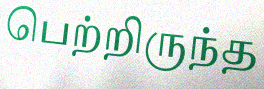
பெற்றிருந்த